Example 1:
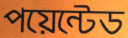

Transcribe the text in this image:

পয়েন্টেড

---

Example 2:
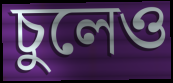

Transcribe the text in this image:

চুলেও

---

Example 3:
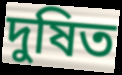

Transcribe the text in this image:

দুষিত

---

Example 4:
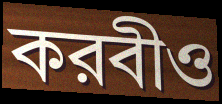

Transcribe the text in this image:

করবীও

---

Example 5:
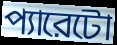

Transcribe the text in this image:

প্যারেটো